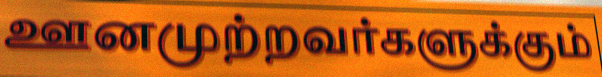
ஊனமுற்றவர்களுக்கும்